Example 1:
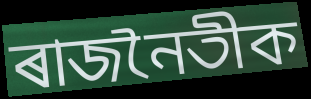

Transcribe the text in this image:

ৰাজনৈতীক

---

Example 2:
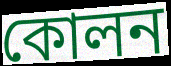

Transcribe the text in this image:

কোলন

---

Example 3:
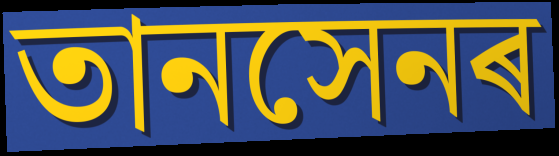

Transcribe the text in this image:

তানসেনৰ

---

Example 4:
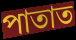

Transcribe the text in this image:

পাতাত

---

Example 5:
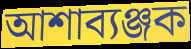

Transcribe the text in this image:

আশাব্যঞ্জক